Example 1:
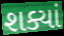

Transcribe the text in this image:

શક્યાં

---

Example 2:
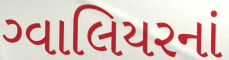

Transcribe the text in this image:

ગ્વાલિયરનાં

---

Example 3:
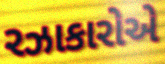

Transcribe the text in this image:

રઝાકારોએ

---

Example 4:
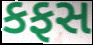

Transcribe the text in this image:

કફસ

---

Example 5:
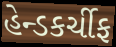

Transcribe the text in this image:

હેન્ડકર્ચીફ